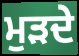
ਮੁਡ਼ਦੇ